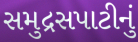
સમુદ્રસપાટીનું